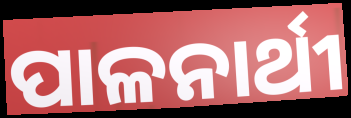
ପାଳନାର୍ଥୀ